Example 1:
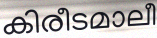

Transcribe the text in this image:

കിരീടമാലീ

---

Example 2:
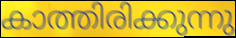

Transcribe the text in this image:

കാത്തിരിക്കുന്നു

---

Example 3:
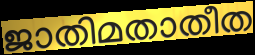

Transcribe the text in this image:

ജാതിമതാതീത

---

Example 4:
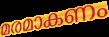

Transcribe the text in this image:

മരമാകണം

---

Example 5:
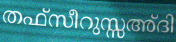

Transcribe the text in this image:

തഫ്സീറുസ്സഅ്ദി